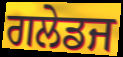
ਗਲੇਡਜ